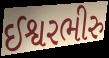
ઈશ્વરભીરુ